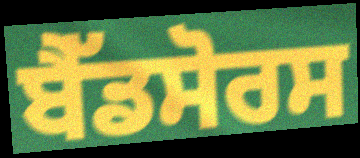
ਬੈੱਡਸੋਰਸ